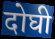
दोघी